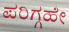
ಪರಿಗ್ಗಹೇ